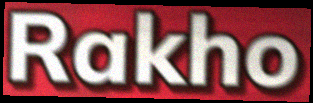
Rakho